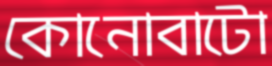
কোনোবাটো